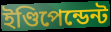
ইণ্ডিপেন্ডেন্ট